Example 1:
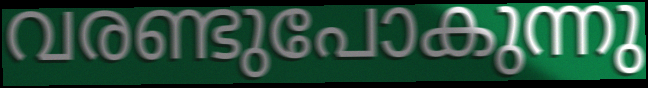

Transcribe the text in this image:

വരണ്ടുപോകുന്നു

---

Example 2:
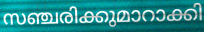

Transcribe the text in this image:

സഞ്ചരിക്കുമാറാക്കി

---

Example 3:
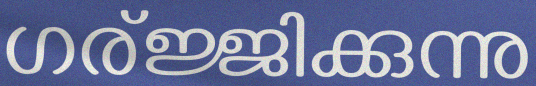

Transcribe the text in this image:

ഗര്ജ്ജിക്കുന്നു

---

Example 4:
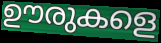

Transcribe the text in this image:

ഊരുകളെ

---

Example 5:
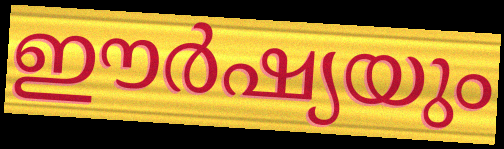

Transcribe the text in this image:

ഈർഷ്യയും